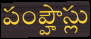
పంప్హౌస్లు